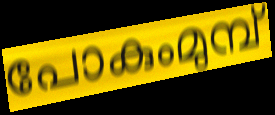
പോകുംമുമ്പ്